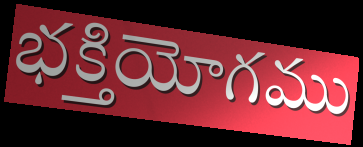
భక్తియోగము